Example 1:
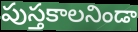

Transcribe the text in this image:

పుస్తకాలనిండా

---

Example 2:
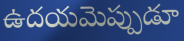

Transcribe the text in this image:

ఉదయమెప్పుడూ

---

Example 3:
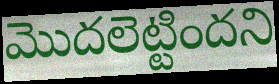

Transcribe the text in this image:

మొదలెట్టిందని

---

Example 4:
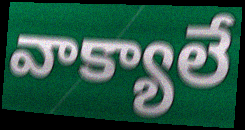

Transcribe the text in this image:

వాక్యాలే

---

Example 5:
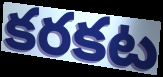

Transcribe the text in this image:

కరకట